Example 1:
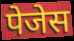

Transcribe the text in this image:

पेजेस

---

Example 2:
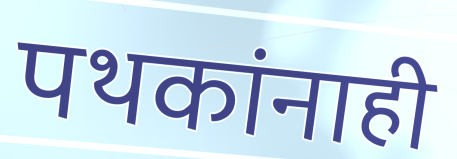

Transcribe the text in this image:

पथकांनाही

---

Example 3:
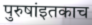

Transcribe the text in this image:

पुरुषांइतकाच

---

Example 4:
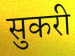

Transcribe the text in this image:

सुकरी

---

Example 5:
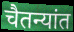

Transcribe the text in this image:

चैतन्यांत